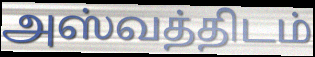
அஸ்வத்திடம்